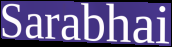
Sarabhai